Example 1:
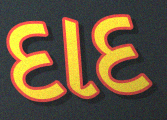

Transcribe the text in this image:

દાદ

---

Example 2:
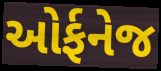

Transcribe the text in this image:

ઓર્ફનેજ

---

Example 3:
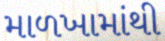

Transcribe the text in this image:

માળખામાંથી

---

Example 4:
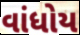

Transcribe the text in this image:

વાંધોય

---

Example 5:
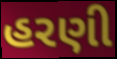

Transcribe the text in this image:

હરણી